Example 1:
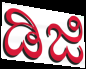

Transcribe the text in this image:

ಡಿಜಿ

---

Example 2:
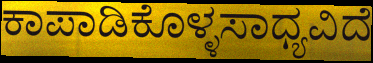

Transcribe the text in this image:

ಕಾಪಾಡಿಕೊಳ್ಳಸಾಧ್ಯವಿದೆ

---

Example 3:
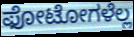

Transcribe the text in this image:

ಫೋಟೋಗಳೆಲ್ಲ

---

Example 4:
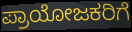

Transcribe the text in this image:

ಪ್ರಾಯೋಜಕರಿಗೆ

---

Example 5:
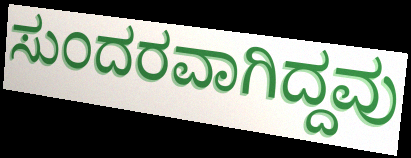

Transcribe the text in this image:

ಸುಂದರವಾಗಿದ್ದವು